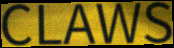
CLAWS